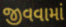
જીવવામાં